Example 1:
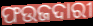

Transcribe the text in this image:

ଫଉଜଦାରୀ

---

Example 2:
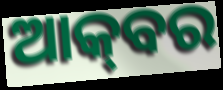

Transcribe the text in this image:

ଆକ୍‌ବର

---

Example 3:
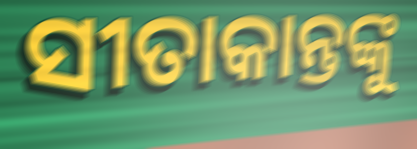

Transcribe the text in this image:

ସୀତାକାନ୍ତଙ୍କୁ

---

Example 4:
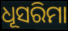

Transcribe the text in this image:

ଧୂସରିମା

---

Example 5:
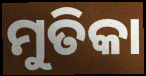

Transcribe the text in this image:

ମୁତିକା